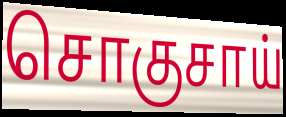
சொகுசாய்